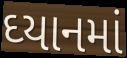
ઘ્યાનમાં